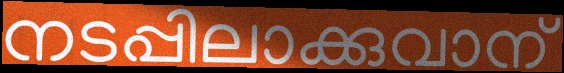
നടപ്പിലാക്കുവാന്